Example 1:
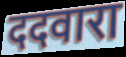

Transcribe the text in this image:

ददवारा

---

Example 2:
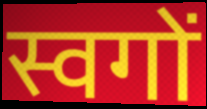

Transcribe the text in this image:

स्वगों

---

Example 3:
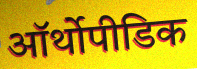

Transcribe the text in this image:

ऑर्थोपीडिक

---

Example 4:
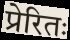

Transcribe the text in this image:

प्रेरितः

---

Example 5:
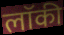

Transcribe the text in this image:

लॉकी